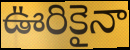
ఊరికైనా